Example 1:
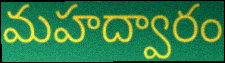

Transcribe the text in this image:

మహద్వారం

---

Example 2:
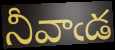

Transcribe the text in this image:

నీవాఁడ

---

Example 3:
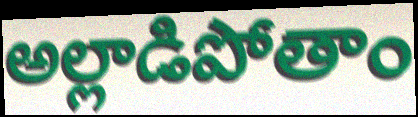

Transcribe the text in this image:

అల్లాడిపోతాం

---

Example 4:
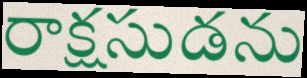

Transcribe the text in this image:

రాక్షసుడను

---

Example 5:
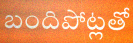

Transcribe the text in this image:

బందిపోట్లతో